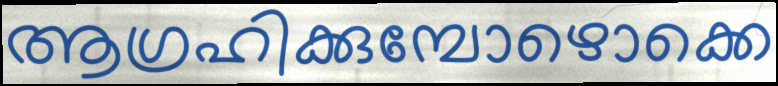
ആഗ്രഹിക്കുമ്പോഴൊക്കെ